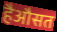
हैऔसत